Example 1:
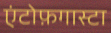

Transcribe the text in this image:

एंटोफ़गास्टा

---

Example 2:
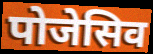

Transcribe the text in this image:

पोजेसिव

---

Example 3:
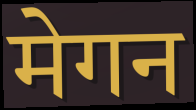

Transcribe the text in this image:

मेगन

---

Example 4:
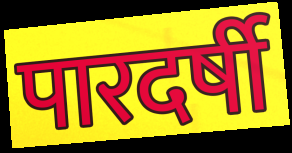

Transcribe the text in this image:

पारदर्षी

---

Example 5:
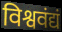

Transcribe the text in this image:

विश्ववंद्यं